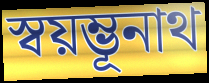
স্বয়ম্ভূনাথ